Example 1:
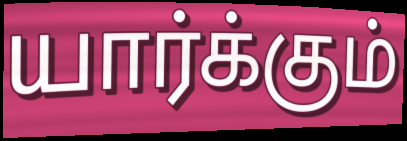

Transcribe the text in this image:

யார்க்கும்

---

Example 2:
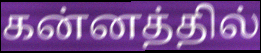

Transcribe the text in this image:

கன்னத்தில்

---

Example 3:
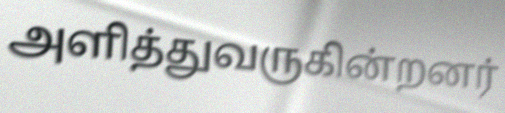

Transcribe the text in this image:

அளித்துவருகின்றனர்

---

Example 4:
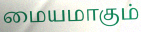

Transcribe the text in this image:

மையமாகும்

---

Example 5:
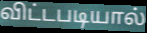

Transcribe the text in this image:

விட்டபடியால்